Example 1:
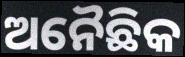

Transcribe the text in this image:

ଅନୈଛିକ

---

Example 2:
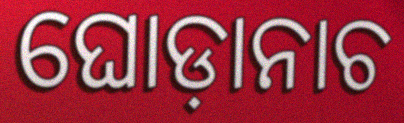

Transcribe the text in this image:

ଘୋଡ଼ାନାଚ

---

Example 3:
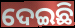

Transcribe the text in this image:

ଦେଇଛି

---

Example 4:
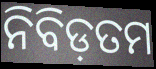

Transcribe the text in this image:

ନିବିଡ଼ତମ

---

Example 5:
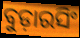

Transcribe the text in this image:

ବୁଡ଼ାରସିଂ